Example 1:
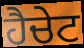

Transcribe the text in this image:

ਹੈਚੇਟ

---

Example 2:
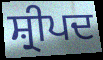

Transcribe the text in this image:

ਸ਼੍ਰੀਪਦ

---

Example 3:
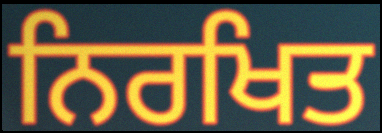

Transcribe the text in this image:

ਨਿਰਖਿਤ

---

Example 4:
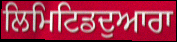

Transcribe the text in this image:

ਲਿਮਿਟਿਡਦੁਆਰਾ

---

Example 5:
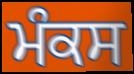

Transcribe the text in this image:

ਮੰਕਸ